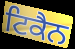
ਟਿਕੈਨ